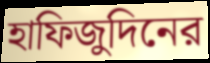
হাফিজুদিনের